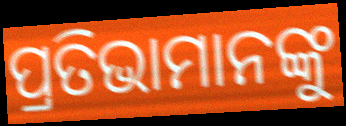
ପ୍ରତିଭାମାନଙ୍କୁ